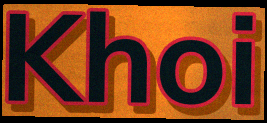
Khoi